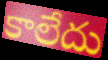
కాలేదు